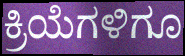
ಕ್ರಿಯೆಗಳಿಗೂ